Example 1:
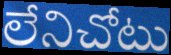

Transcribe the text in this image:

లేనిచోటు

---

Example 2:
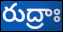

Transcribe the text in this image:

రుద్రాః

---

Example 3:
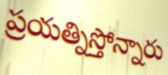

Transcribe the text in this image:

ప్రయత్నిస్తోన్నారు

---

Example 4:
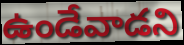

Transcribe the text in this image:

ఉండేవాడని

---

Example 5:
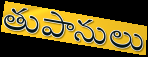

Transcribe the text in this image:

తుపానులు